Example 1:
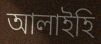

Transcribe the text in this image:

আলাইহি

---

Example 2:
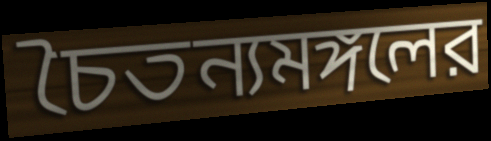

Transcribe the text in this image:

চৈতন্যমঙ্গলের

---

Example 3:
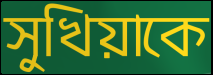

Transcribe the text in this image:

সুখিয়াকে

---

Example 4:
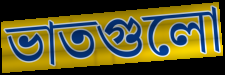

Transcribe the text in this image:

ভাতগুলো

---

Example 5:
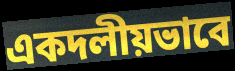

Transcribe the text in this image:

একদলীয়ভাবে